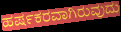
ಹರ್ಷಕರವಾಗಿರುವುದು